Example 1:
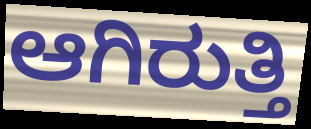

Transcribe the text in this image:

ಆಗಿರುತ್ತಿ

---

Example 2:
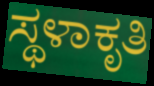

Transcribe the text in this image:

ಸ್ಥಳಾಕೃತಿ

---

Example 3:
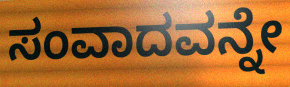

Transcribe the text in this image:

ಸಂವಾದವನ್ನೇ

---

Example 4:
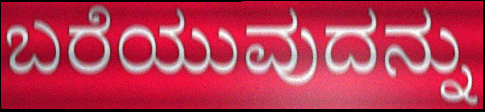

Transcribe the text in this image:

ಬರೆಯುವುದನ್ನು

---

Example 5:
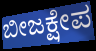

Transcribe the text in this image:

ಬೀಜಕ್ಷೇಪ